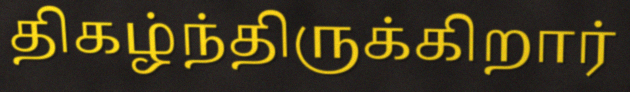
திகழ்ந்திருக்கிறார்